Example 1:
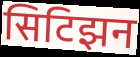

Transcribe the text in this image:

सिटिझन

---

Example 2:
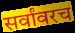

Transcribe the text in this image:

सर्वांवरच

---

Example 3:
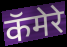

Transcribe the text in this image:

कॅमेरे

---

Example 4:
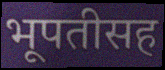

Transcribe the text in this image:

भूपतीसह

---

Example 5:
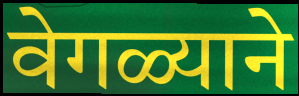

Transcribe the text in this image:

वेगळ्याने